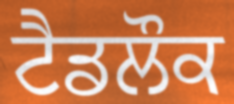
ਟੈਡਲੌਕ